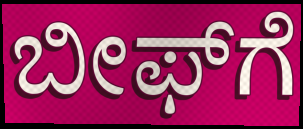
ಬೀಫ್‌ಗೆ